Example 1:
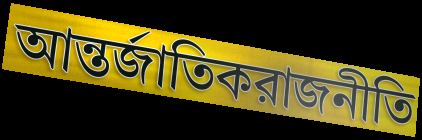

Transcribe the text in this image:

আন্তর্জাতিকরাজনীতি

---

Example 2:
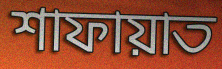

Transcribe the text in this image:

শাফায়াত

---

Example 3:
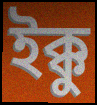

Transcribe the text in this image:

ইক্কু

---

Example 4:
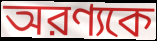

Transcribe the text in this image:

অরণ্যকে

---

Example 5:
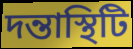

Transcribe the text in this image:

দন্তাস্থিটি